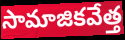
సామాజికవేత్త